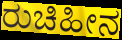
ರುಚಿಹೀನ